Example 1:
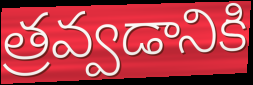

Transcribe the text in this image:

త్రవ్వడానికి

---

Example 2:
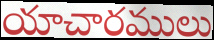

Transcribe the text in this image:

యాచారములు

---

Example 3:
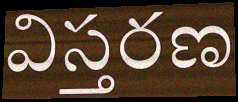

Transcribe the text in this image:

విస్తరణ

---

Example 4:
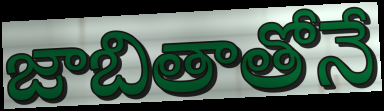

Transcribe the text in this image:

జాబితాతోనే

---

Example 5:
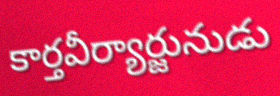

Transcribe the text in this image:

కార్తవీర్యార్జునుడు